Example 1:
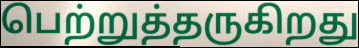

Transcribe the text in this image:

பெற்றுத்தருகிறது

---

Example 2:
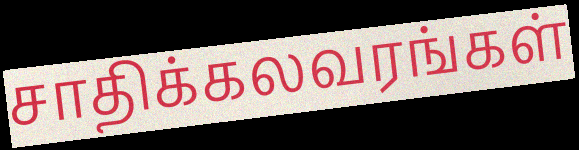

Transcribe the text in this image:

சாதிக்கலவரங்கள்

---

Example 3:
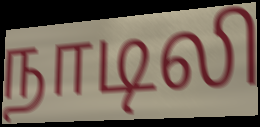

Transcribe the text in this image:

நாடிலி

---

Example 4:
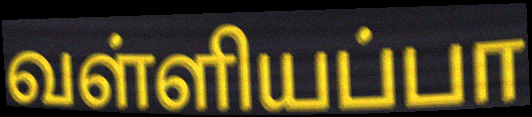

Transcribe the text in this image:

வள்ளியப்பா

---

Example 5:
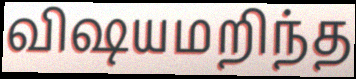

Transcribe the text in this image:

விஷயமறிந்த